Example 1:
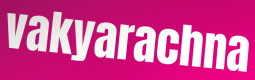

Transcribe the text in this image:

vakyarachna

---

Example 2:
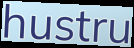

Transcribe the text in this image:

hustru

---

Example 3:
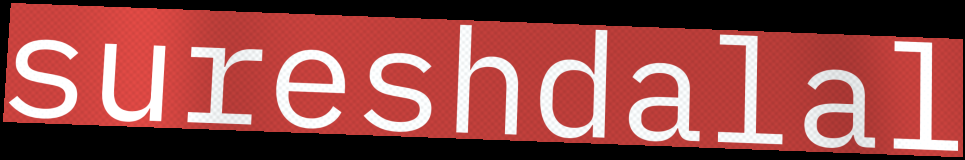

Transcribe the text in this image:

sureshdalal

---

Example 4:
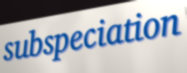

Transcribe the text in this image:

subspeciation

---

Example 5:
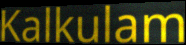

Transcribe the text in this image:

Kalkulam